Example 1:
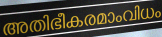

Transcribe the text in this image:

അതിഭീകരമാംവിധം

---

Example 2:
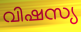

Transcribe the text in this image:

വിഷസ്യ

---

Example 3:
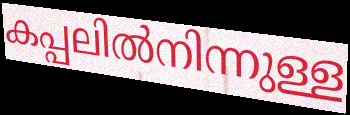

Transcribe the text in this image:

കപ്പലിൽനിന്നുള്ള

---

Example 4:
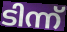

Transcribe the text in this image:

ടിന്ന്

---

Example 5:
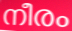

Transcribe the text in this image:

നീരം